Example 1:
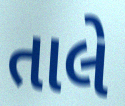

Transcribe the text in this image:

તાલે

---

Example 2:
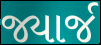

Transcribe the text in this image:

જ્યાર્જ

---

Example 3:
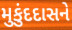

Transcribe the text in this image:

મુકુંદદાસને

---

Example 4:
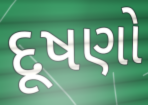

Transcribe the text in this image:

દૂષણો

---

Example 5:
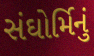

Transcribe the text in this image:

સંઘોર્મિનું